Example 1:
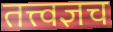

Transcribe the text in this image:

तत्त्वज्ञच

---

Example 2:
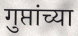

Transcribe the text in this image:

गुप्तांच्या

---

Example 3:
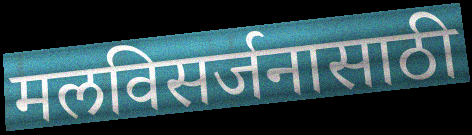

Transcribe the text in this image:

मलविसर्जनासाठी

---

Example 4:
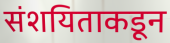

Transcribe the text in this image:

संशयिताकडून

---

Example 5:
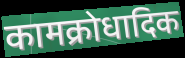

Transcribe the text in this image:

कामक्रोधादिक